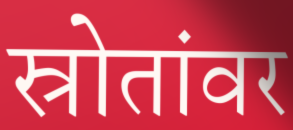
स्रोतांवर